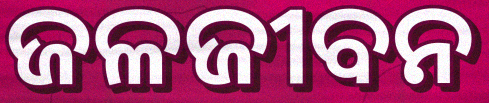
ଜଳଜୀବନ